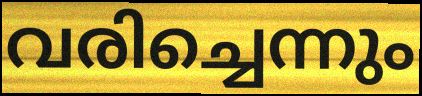
വരിച്ചെന്നും